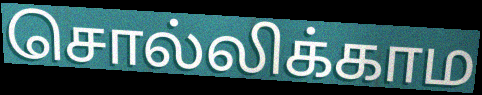
சொல்லிக்காம